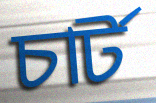
চাৰ্ট